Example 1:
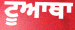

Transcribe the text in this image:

ਟੂਆਥਾ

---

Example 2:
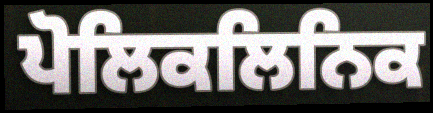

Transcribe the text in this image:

ਪੋਲਿਕਲਿਨਿਕ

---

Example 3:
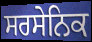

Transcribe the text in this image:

ਸਰਸੇਨਿਕ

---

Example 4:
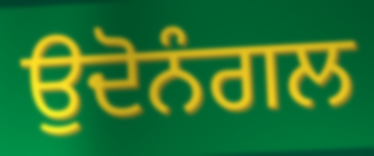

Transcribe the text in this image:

ਉਦੋਨੰਗਲ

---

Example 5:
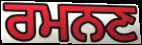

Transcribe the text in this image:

ਰਮਨਣ